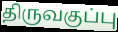
திருவகுப்பு